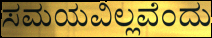
ಸಮಯವಿಲ್ಲವೆಂದು